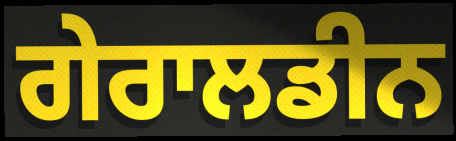
ਗੇਰਾਲਡੀਨ